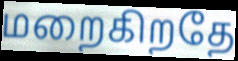
மறைகிறதே